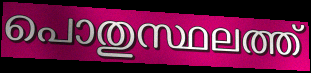
പൊതുസ്ഥലത്ത്